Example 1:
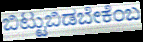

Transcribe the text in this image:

ಬಿಟ್ಟುಬಿಡಬೇಕೆಂಬ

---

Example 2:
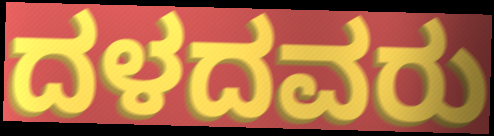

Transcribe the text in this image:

ದಳದವರು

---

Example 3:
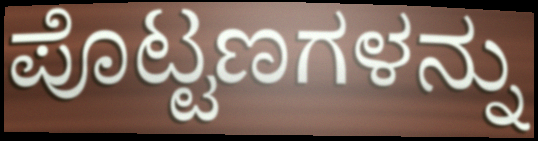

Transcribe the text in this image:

ಪೊಟ್ಟಣಗಳನ್ನು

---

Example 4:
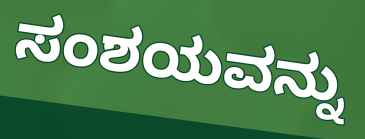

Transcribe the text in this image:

ಸಂಶಯವನ್ನು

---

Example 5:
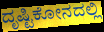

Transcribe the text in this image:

ದೃಷ್ಟಿಕೋನದಲ್ಲಿ